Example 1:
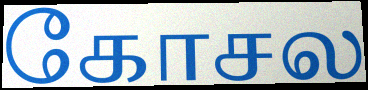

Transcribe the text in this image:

கோசல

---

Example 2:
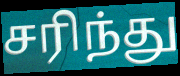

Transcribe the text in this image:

சரிந்து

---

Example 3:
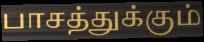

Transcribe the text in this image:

பாசத்துக்கும்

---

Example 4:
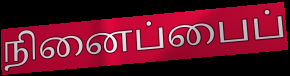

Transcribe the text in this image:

நினைப்பைப்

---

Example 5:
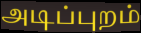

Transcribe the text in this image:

அடிப்புறம்